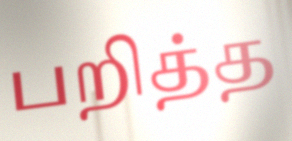
பறித்த